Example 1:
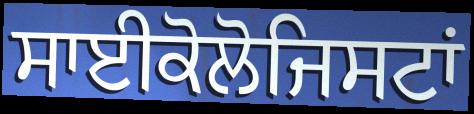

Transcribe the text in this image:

ਸਾਈਕੋਲੋਜਿਸਟਾਂ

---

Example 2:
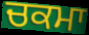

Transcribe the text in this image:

ਚਕਮਾ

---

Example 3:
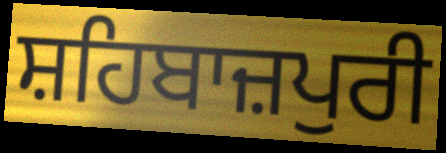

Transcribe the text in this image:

ਸ਼ਹਿਬਾਜ਼ਪੁਰੀ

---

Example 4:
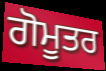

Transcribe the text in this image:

ਗੋਮੂਤਰ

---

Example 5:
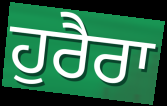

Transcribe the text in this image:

ਹੁਰੈਰਾ